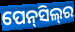
ପେନ୍‌ସିଲ୍‌ର